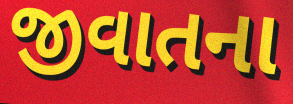
જીવાતના